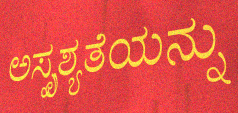
ಅಸ್ಪೃಶ್ಯತೆಯನ್ನು